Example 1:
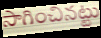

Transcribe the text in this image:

సాగించినట్టు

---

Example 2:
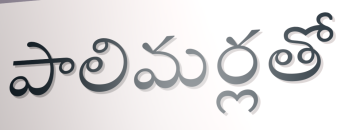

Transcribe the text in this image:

పాలిమర్లతో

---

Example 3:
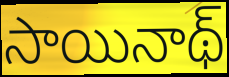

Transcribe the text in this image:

సాయినాథ్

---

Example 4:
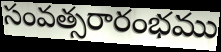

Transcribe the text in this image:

సంవత్సరారంభము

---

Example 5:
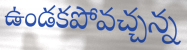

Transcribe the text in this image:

ఉండకపోవచ్చన్న